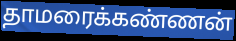
தாமரைக்கண்ணன்